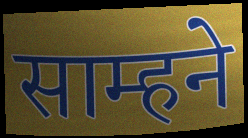
साम्हने